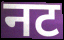
नट